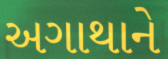
અગાથાને